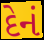
દેનં